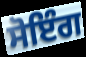
ਸੋਇੰਗ